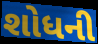
શોધની